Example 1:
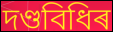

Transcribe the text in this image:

দণ্ডবিধিৰ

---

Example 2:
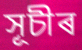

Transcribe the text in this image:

সূচীৰ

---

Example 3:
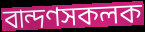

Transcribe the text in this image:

বান্দণসকলক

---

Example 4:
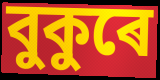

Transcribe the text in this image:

বুকুৰে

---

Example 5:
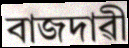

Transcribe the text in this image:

বাজদাৱী